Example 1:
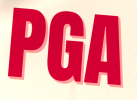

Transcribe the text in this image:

PGA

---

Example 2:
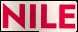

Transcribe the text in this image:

NILE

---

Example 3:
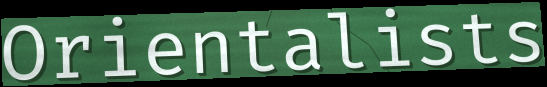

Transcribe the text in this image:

Orientalists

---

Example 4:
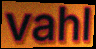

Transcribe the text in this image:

vahl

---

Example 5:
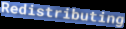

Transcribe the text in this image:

Redistributing